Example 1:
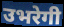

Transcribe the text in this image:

उभरेगी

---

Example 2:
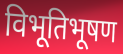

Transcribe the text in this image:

विभूतिभूषण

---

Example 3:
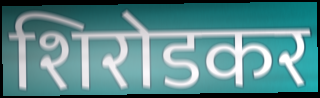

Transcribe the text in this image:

शिरोडकर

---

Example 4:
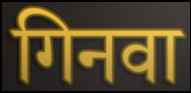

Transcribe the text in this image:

गिनवा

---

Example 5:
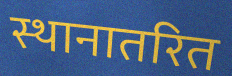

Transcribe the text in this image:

स्थानातरित